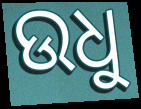
ଉଧୁ